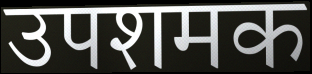
उपशमक